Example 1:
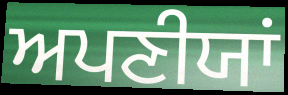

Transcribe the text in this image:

ਅਪਣੀਯਾਂ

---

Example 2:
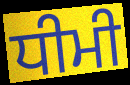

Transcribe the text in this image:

ਧੀਮੀ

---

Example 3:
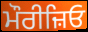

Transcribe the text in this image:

ਮੌਰੀਜ਼ਿਓ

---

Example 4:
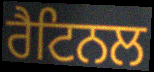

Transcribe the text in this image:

ਰੈਟਿਨਲ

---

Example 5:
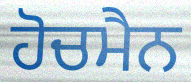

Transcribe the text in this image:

ਹੋਚਮੈਨ